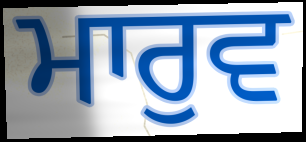
ਮਾਰੁਵ